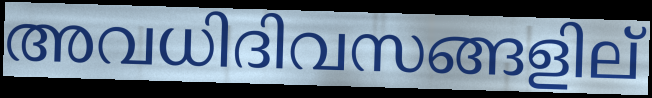
അവധിദിവസങ്ങളില്